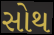
સોથ